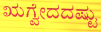
ಋಗ್ವೇದದಷ್ಟು